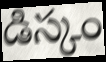
డిస్కం